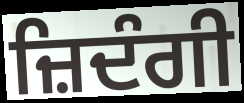
ਜ਼ਿਦੰਗੀ